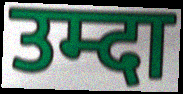
उम्दा